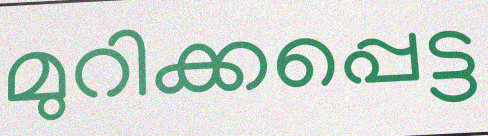
മുറിക്കപ്പെട്ട